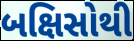
બક્ષિસોથી